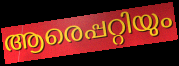
ആരെപ്പറ്റിയും